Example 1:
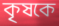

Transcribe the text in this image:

কৃষকে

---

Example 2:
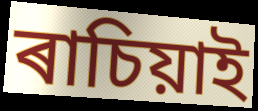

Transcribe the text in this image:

ৰাচিয়াই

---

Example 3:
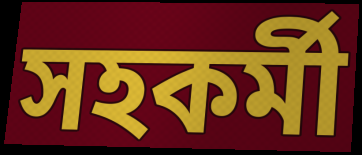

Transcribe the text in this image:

সহকৰ্মী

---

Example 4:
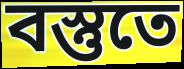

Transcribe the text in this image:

বস্তুতে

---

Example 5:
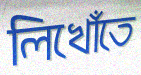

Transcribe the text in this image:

লিখোঁতে